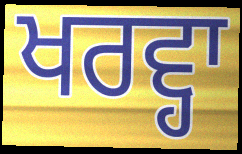
ਖਰਵ੍ਹਾ